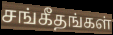
சங்கீதங்கள்